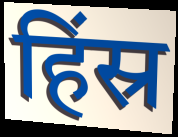
हिंस्र